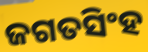
ଜଗତସିଂହ